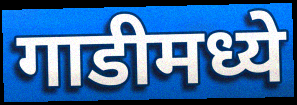
गाडीमध्ये